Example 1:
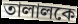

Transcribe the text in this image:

তালালকে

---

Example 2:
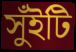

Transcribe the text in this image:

সুঁইটি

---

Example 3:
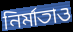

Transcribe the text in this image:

নির্মাতাও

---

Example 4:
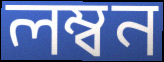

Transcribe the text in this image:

লম্বন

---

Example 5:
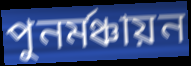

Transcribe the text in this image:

পুনর্মঞ্চায়ন